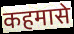
कहमासे